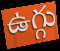
ఉగ్గు